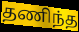
தணிந்த